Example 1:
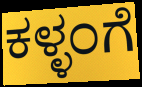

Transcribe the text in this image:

ಕಳ್ಳಂಗೆ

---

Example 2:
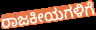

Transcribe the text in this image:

ರಾಜಕೀಯಗಳಿಗೆ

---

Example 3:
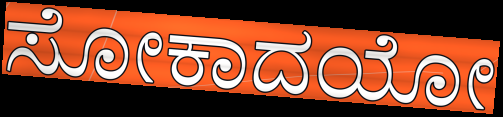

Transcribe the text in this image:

ಸೋಕಾದಯೋ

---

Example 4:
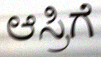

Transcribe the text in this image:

ಆಸ್ರಿಗೆ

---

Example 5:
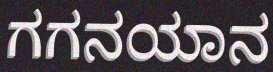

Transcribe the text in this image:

ಗಗನಯಾನ